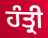
ਹੰਤ੍ਰੀ